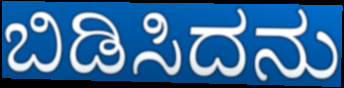
ಬಿಡಿಸಿದನು